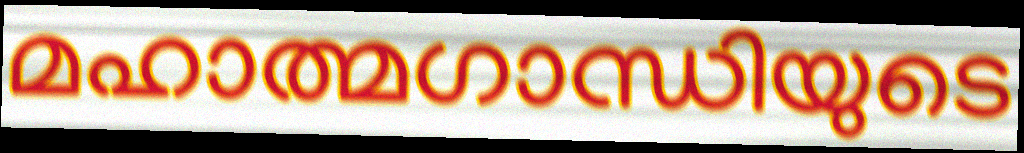
മഹാത്മഗാന്ധിയുടെ